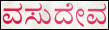
ವಸುದೇವ